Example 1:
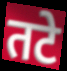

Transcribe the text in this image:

तटे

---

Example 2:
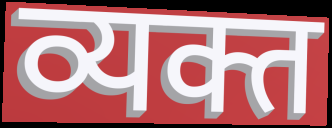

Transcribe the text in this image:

व्यक्‍त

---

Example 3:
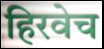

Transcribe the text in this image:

हिरवेच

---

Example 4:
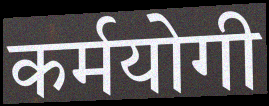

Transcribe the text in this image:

कर्मयोगी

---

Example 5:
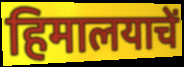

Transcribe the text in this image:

हिमालयाचें